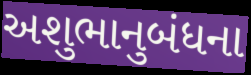
અશુભાનુબંધના